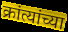
क्रांत्यांच्या